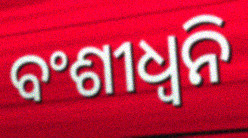
ବଂଶୀଧ୍ବନି